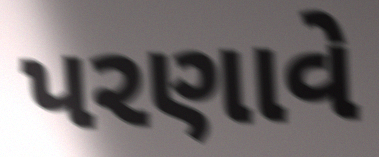
પરણાવે